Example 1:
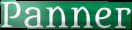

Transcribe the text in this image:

Panner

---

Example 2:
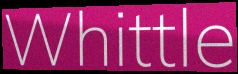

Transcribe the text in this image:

Whittle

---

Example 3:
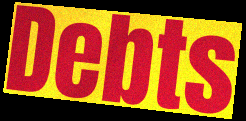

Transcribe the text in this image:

Debts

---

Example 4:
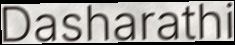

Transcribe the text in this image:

Dasharathi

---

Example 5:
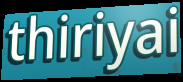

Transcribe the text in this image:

thiriyai